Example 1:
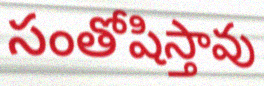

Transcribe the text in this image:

సంతోషిస్తావు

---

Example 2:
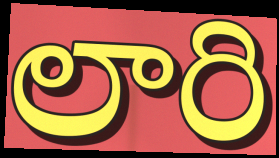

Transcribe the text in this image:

లారి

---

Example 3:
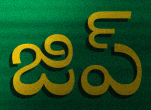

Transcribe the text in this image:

జిప్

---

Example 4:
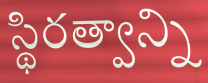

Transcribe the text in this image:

స్థిరత్వాన్ని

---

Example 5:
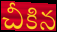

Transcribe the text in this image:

చీకిన